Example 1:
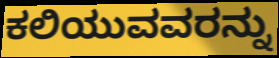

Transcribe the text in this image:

ಕಲಿಯುವವರನ್ನು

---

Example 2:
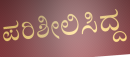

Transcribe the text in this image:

ಪರಿಶೀಲಿಸಿದ್ದ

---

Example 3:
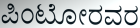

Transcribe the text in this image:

ಪಿಂಟೋರವರ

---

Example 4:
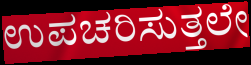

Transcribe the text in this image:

ಉಪಚರಿಸುತ್ತಲೇ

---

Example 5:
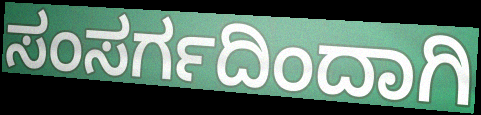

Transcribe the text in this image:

ಸಂಸರ್ಗದಿಂದಾಗಿ